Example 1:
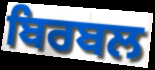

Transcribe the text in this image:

ਬਿਰਬਲ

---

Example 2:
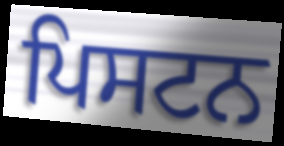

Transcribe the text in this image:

ਪਿਸਟਨ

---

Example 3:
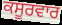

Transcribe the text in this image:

ਕਸੂਰਵਾਰ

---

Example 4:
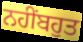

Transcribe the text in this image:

ਨਹੀਂਬਹੁਤ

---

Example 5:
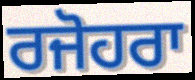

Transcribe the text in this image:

ਰਜੋਹਰਾ